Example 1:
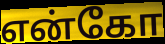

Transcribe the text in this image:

என்கோ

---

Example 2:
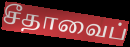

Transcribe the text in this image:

சீதாவைப்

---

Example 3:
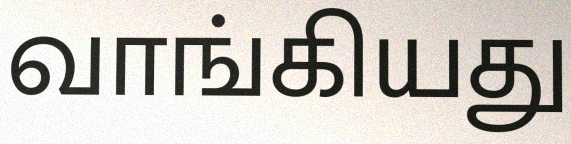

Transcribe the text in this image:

வாங்கியது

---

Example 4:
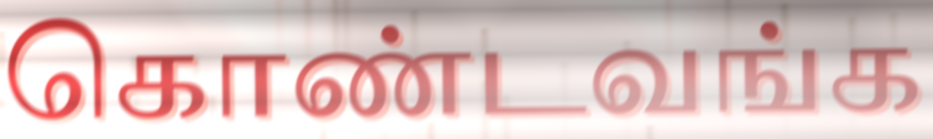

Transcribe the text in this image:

கொண்டவங்க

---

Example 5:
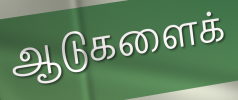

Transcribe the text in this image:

ஆடுகளைக்